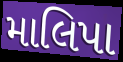
માલિપા